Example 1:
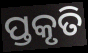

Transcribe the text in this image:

ପ୍ତକୃତି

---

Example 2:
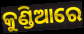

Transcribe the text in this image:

କୁଣ୍ଡିଆରେ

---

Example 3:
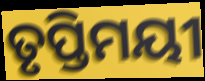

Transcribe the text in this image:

ତୃପ୍ତିମୟୀ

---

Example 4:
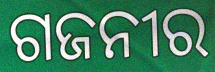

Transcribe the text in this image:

ଗଜନୀର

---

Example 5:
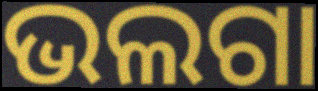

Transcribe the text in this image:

ଭଲଗା